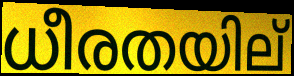
ധീരതയില്